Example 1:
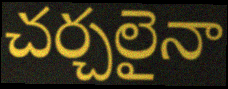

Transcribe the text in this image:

చర్చలైనా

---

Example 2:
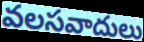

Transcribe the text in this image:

వలసవాదులు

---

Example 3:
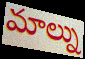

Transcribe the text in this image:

మాల్ను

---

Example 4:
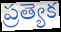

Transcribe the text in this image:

ప్రత్యెక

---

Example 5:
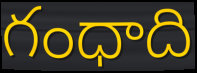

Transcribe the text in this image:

గంధాది